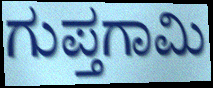
ಗುಪ್ತಗಾಮಿ